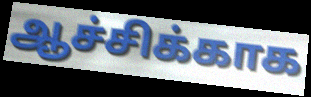
ஆச்சிக்காக